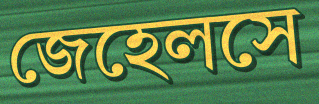
জেহেলসে